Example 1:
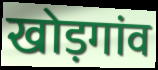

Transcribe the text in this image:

खोड़गांव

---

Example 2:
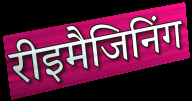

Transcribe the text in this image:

रीइमैजिनिंग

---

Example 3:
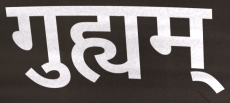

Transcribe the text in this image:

गुह्यम्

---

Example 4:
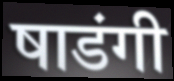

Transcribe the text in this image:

षाडंगी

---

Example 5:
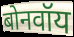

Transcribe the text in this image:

बोनवॉय